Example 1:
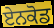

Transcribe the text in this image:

ਏਨਕੋਡ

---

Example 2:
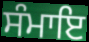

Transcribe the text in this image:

ਸੰਮਾਇ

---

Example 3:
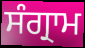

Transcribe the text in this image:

ਸੰਗ੍ਰਾਮ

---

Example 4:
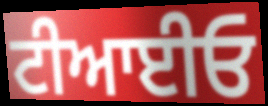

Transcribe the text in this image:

ਟੀਆਈਓ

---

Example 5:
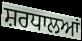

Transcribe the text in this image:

ਸ਼ਰਧਾਲਆਂ